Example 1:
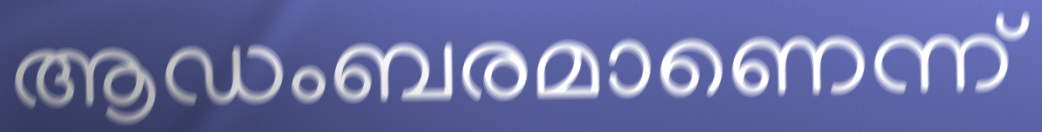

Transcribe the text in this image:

ആഡംബരമാണെന്ന്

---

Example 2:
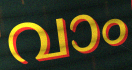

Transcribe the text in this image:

വാം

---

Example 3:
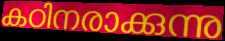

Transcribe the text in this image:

കഠിനരാക്കുന്നു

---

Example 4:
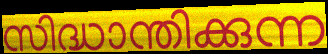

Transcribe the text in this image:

സിദ്ധാന്തിക്കുന്ന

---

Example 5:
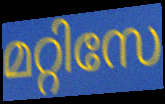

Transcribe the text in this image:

മറ്റിസേ